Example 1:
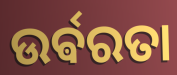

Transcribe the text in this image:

ଉର୍ଵରତା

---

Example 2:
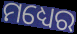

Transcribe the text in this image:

ମଧ୍ୟେର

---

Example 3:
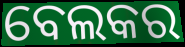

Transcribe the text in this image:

ବେଲକର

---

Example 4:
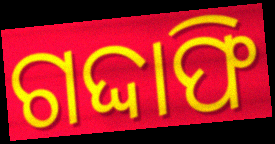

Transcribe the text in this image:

ଗଦ୍ଦାଫି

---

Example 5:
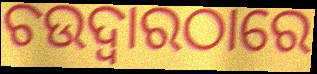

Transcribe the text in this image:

ଚଉଦ୍ଵାରଠାରେ